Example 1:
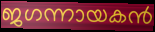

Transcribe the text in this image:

ജഗന്നായകൻ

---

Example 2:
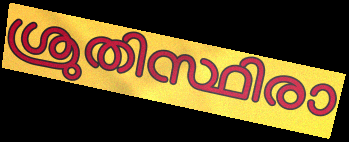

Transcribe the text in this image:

ശ്രുതിസ്ഥിരാ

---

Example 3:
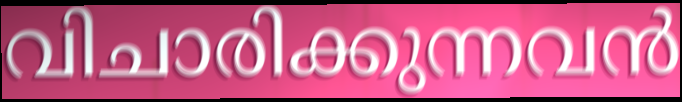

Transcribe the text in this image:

വിചാരിക്കുന്നവൻ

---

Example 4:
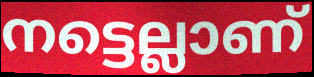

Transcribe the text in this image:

നട്ടെല്ലാണ്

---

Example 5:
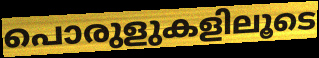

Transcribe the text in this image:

പൊരുളുകളിലൂടെ